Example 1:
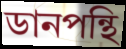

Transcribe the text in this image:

ডানপন্থি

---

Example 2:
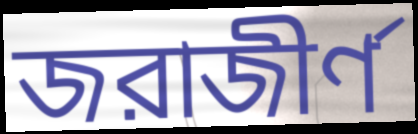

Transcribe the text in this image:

জরাজীর্ণ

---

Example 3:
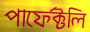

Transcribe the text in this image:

পার্ফেক্টলি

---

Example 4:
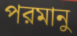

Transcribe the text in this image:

পরমানু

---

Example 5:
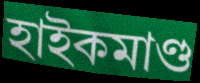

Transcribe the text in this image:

হাইকমাণ্ড